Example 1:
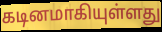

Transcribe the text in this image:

கடினமாகியுள்ளது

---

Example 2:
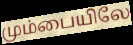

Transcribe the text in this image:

மும்பையிலே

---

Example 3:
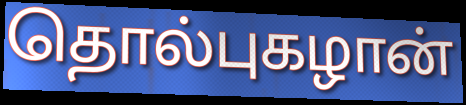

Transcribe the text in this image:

தொல்புகழான்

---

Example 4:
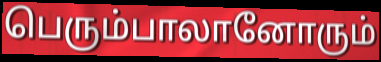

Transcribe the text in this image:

பெரும்பாலானோரும்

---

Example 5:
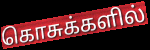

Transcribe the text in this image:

கொசுக்களில்